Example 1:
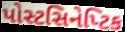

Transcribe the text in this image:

પોસ્ટસિનેપ્ટિક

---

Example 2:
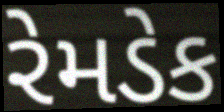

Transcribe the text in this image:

રેમડેક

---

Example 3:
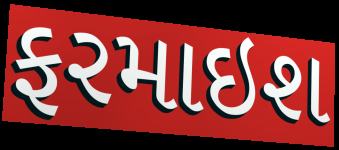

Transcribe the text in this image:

ફરમાઇશ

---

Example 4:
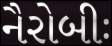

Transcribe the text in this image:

નૈરોબીઃ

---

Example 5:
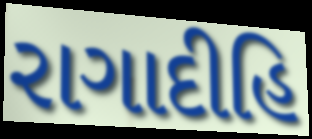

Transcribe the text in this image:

રાગાદીહિ